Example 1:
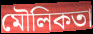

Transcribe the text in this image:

মৌলিকতা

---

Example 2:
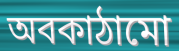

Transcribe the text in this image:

অবকাঠামো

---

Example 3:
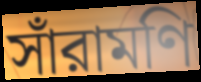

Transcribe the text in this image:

সাঁরামণি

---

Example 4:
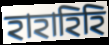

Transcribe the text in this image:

হাহাহিহি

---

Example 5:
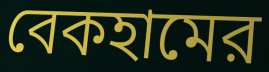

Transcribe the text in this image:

বেকহামের